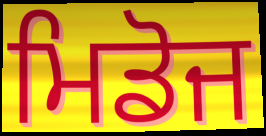
ਮਿਡੋਜ